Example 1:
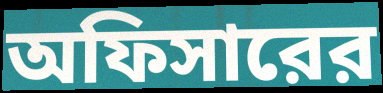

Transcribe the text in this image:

অফিসারের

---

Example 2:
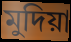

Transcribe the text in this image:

মুদিয়া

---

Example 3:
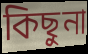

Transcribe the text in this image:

কিছুনা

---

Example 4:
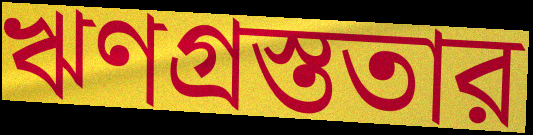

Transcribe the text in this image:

ঋণগ্রস্ততার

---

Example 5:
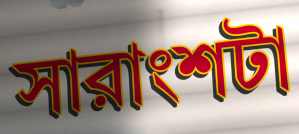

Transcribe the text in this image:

সারাংশটা